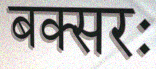
बक्सरः